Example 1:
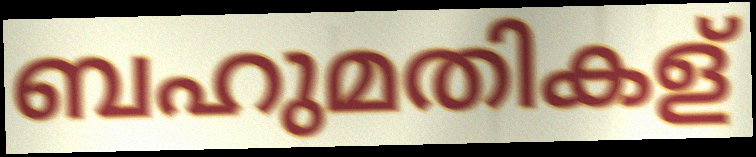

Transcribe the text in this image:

ബഹുമതികള്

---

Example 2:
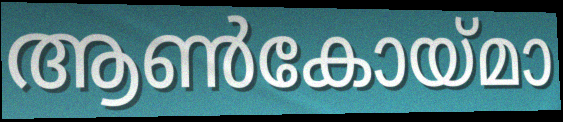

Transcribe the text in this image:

ആൺകോയ്മാ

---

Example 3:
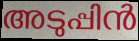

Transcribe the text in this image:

അടുപ്പിൻ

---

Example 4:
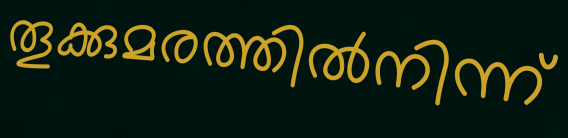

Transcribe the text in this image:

തൂക്കുമരത്തിൽനിന്ന്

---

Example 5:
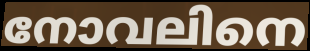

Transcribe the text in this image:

നോവലിനെ